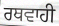
ਰਥਵਾਹੀ